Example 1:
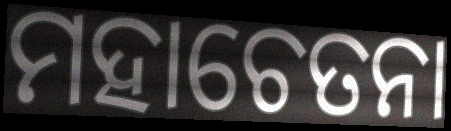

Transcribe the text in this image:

ମହାଚେତନା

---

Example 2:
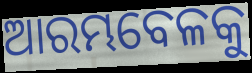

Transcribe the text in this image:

ଆରମ୍ଭବେଳକୁ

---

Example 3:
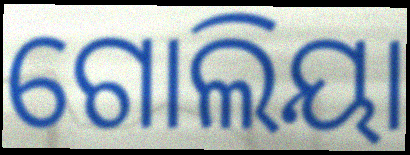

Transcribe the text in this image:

ଗୋଲିୟା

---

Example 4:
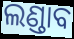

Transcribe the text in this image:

ଲଣ୍ଡାବ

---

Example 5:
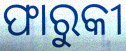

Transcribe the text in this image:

ଫାରୁକୀ